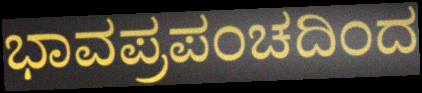
ಭಾವಪ್ರಪಂಚದಿಂದ